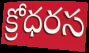
క్రోధరస